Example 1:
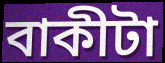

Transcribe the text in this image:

বাকীটা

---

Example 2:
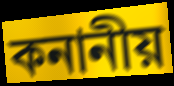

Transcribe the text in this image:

কনানীয়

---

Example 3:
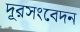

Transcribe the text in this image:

দূরসংবেদন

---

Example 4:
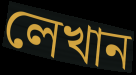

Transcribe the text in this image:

লেখান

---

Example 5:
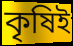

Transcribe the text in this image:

কৃষিই